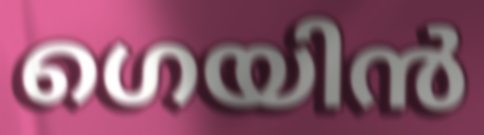
ഗെയിൻ